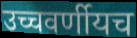
उच्चवर्णीयच